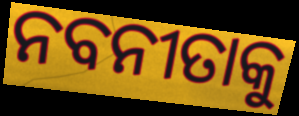
ନବନୀତାକୁ